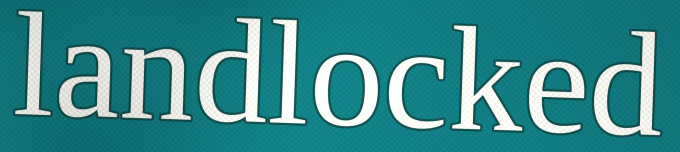
landlocked